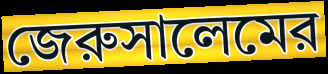
জেরুসালেমের